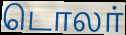
டொலர்